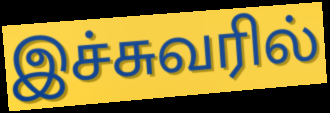
இச்சுவரில்